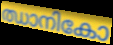
ഝാനികോ